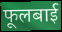
फूलबाई